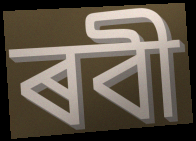
ৰবী